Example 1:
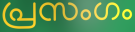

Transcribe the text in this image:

പ്രസംഗം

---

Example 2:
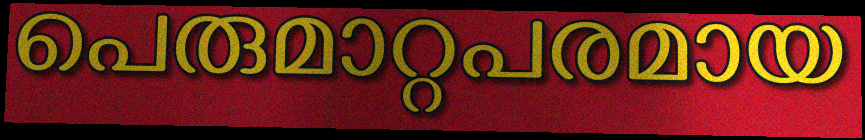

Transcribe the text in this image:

പെരുമാറ്റപരമായ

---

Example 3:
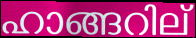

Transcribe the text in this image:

ഹാങ്ങറില്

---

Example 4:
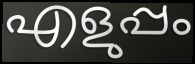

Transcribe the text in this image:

എളുപ്പം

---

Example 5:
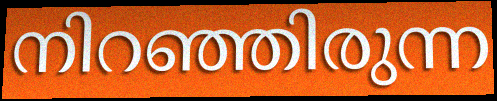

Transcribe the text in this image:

നിറഞ്ഞിരുന്ന